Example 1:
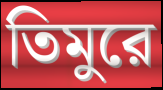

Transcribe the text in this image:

তিমুরে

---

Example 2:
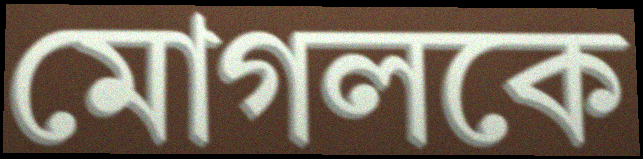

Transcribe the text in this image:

মোগলকে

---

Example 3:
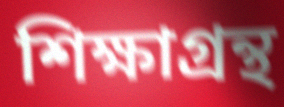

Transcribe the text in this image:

শিক্ষাগ্রন্থ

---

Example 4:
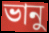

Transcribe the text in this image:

ভানু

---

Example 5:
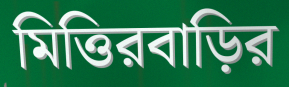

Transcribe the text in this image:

মিত্তিরবাড়ির